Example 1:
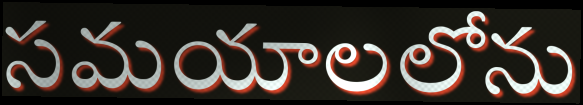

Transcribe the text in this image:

సమయాలలోను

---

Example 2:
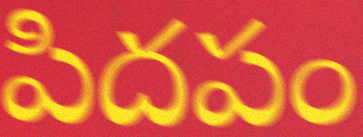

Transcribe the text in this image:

పిదపం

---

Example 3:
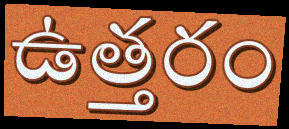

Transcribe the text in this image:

ఉత్తరం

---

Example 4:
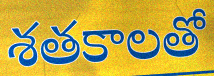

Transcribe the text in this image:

శతకాలతో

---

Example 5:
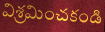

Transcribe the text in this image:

విశ్రమించకండి